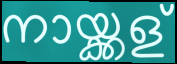
നായ്ക്കള്